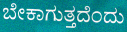
ಬೇಕಾಗುತ್ತದೆಂದು